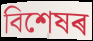
বিশেষৰ